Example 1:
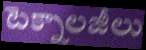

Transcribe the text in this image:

టెక్నాలజీలు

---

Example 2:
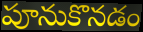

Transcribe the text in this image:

పూనుకొనడం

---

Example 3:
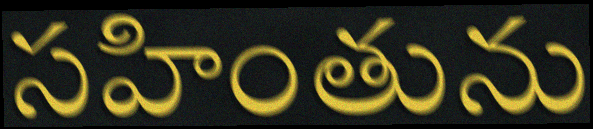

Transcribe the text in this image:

సహింతును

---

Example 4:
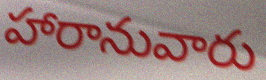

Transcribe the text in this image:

హారానువారు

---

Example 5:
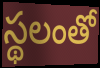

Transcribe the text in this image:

స్థలంతో